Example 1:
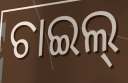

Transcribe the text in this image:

ଚାଇଲ୍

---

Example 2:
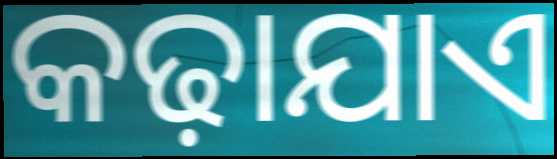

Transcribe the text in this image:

କଢ଼ାଯାଏ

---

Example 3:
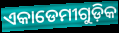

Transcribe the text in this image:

ଏକାଡେମୀଗୁଡ଼ିକ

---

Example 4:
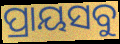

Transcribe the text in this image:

ପ୍ରାୟସବୁ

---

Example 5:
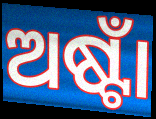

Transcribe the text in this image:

ଅଷ୍ଟାଁ